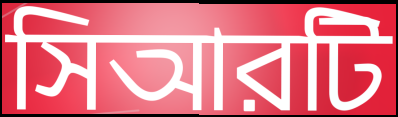
সিআরটি